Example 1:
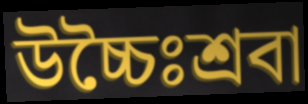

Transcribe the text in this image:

উচ্চৈঃশ্রবা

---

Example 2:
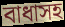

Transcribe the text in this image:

বাধাসহ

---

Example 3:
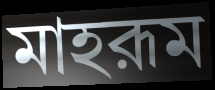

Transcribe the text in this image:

মাহরূম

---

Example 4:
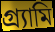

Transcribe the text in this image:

গ্র্যামি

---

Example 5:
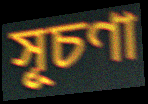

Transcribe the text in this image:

সূচণা